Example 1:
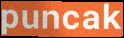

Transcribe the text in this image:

puncak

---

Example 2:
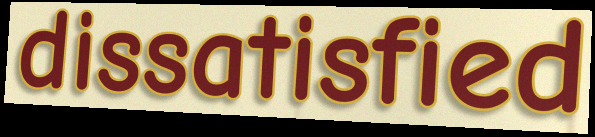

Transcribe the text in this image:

dissatisfied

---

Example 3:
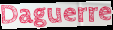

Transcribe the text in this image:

Daguerre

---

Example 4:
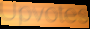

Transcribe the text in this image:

Upvotes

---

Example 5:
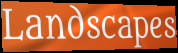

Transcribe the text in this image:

Landscapes